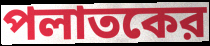
পলাতকের